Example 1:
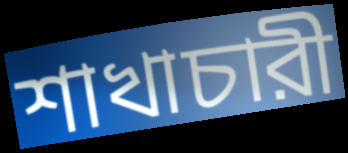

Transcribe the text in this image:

শাখাচারী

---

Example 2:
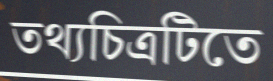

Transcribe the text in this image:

তথ্যচিত্রটিতে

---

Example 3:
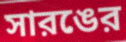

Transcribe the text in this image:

সারঙের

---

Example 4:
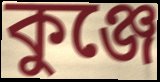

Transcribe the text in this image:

কুঞ্জে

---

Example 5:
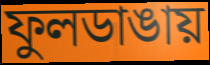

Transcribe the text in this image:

ফুলডাঙায়